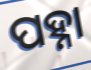
ପହ୍ନା